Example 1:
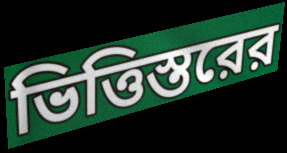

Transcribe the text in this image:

ভিত্তিস্তরের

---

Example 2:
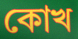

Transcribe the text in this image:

কোখ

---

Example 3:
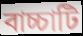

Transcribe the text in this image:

বাচ্চাটি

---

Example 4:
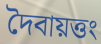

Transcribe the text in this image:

দৈবায়ত্তং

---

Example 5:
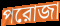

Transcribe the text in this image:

পরোজা